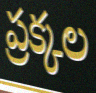
ప్రక్కల